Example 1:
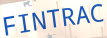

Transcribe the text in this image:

FINTRAC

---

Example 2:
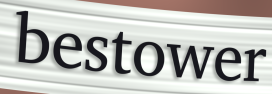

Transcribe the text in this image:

bestower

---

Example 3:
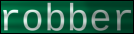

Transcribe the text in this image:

robber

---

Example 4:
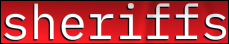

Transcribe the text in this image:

sheriffs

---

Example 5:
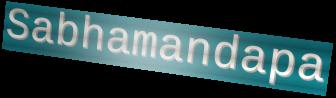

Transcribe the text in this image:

Sabhamandapa